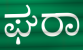
ಘರಾ